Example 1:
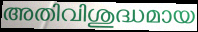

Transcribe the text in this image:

അതിവിശുദ്ധമായ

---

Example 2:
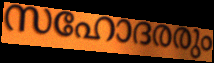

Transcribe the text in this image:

സഹോദരരും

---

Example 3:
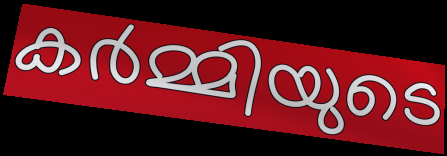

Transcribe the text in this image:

കർമ്മിയുടെ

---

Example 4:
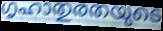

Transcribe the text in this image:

ഗൃഹാതുരതയുടെ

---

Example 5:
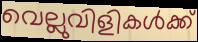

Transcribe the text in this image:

വെല്ലുവിളികൾക്ക്